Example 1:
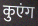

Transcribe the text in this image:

कुएंग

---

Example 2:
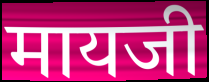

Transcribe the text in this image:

मायजी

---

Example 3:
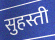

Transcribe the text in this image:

सुहस्ती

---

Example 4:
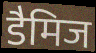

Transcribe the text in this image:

डैमिज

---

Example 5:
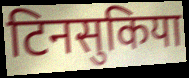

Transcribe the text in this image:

टिनसुकिया